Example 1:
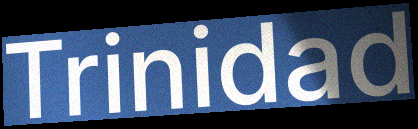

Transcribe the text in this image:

Trinidad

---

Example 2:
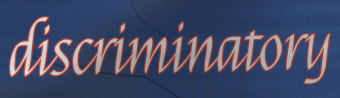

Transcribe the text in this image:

discriminatory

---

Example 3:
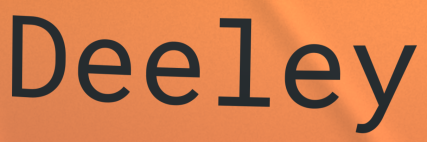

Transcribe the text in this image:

Deeley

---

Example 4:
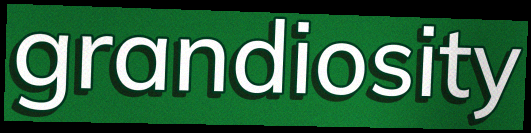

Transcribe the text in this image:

grandiosity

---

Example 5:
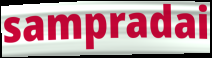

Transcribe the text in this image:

sampradai